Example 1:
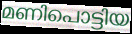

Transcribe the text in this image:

മണിപൊട്ടിയ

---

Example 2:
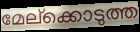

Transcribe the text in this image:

മേല്ക്കൊടുത്ത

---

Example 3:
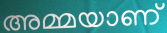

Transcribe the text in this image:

അമ്മയാണ്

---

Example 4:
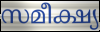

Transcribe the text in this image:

സമീക്ഷ്യ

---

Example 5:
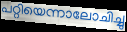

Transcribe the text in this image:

പറ്റിയെന്നാലോചിച്ചു